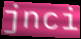
jnci